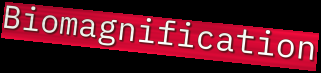
Biomagnification